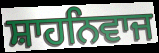
ਸ਼ਾਹਨਿਵਾਜ